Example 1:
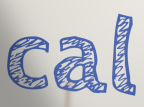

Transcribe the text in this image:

cal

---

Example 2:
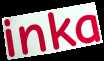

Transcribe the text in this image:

inka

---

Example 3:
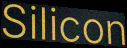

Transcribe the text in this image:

Silicon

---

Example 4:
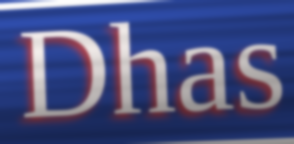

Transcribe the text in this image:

Dhas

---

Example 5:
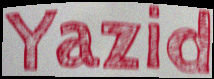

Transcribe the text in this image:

Yazid